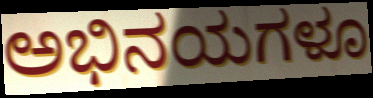
ಅಭಿನಯಗಳೂ